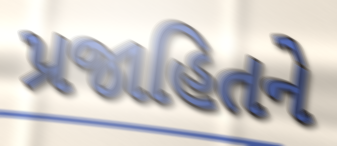
પ્રજાહિતને